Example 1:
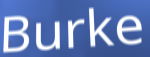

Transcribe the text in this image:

Burke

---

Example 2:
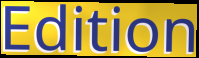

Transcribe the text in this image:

Edition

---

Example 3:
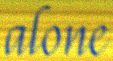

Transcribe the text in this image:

alone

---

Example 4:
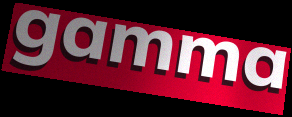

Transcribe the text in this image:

gamma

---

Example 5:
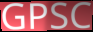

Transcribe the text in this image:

GPSC